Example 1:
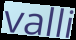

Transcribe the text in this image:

valli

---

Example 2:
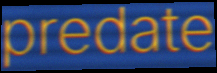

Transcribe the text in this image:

predate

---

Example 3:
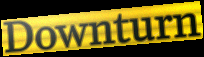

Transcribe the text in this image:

Downturn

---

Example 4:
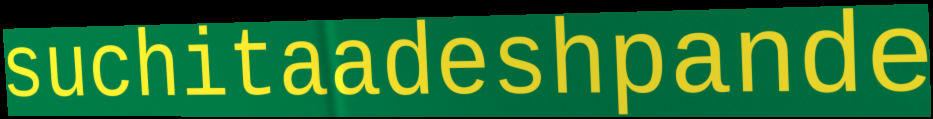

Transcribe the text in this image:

suchitaadeshpande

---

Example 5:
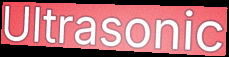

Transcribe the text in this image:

Ultrasonic